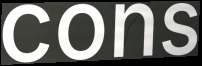
cons